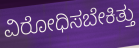
ವಿರೋಧಿಸಬೇಕಿತ್ತು